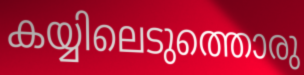
കയ്യിലെടുത്തൊരു